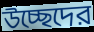
উচ্ছেদের